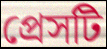
প্রেসটি